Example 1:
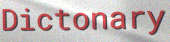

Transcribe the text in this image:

Dictonary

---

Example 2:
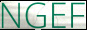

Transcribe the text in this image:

NGEF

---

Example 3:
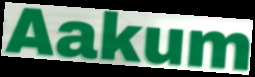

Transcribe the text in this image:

Aakum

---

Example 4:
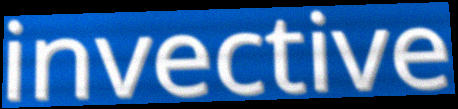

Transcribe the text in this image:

invective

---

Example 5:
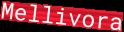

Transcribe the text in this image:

Mellivora